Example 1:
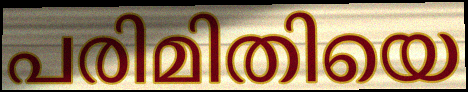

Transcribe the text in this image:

പരിമിതിയെ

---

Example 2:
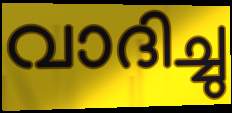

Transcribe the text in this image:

വാദിച്ചു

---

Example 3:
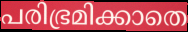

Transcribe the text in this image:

പരിഭ്രമിക്കാതെ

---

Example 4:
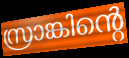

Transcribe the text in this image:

സ്രാങ്കിന്റെ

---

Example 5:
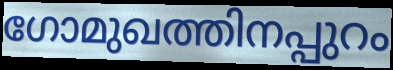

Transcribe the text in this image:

ഗോമുഖത്തിനപ്പുറം